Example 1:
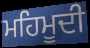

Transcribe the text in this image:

ਮਹਿਮੂਦੀ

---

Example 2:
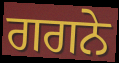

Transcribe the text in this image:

ਗਗਨੇ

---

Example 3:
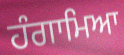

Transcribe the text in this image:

ਹੰਗਾਮਿਆ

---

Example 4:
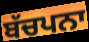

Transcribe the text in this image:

ਬੱਚਪਨਾ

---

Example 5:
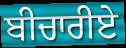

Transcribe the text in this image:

ਬੀਚਾਰੀਏ